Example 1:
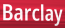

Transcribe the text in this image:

Barclay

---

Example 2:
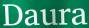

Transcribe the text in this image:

Daura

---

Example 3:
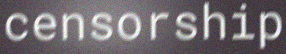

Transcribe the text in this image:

censorship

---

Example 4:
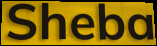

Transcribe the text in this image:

Sheba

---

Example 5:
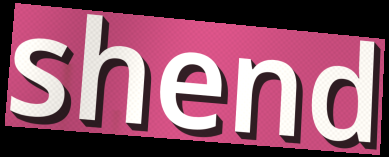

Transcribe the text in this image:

shend